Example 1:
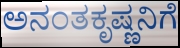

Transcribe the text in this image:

ಅನಂತಕೃಷ್ಣನಿಗೆ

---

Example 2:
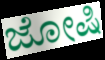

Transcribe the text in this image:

ಜೋಷಿ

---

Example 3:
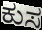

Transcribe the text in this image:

ಕುಸ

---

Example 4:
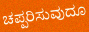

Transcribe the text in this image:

ಚಪ್ಪರಿಸುವುದೂ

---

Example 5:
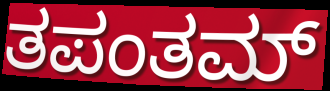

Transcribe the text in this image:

ತಪಂತಮ್